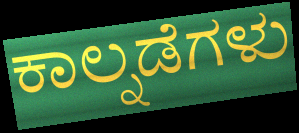
ಕಾಲ್ನಡೆಗಳು